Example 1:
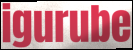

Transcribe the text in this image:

igurube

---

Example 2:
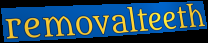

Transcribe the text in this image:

removalteeth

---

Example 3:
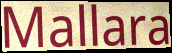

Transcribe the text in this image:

Mallara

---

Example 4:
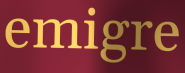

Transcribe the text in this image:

emigre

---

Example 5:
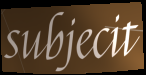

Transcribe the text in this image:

subjecit